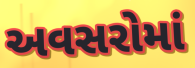
અવસરોમાં